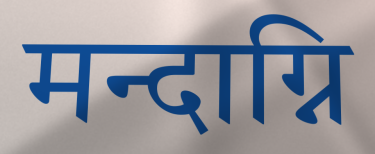
मन्दाग्नि